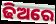
ଢିଅରେ